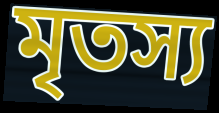
মৃতস্য